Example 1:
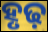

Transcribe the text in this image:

ହୃଢ଼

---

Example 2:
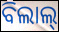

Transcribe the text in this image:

ବିଲାଲ୍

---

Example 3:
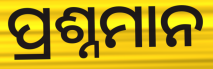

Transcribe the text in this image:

ପ୍ରଶ୍ନମାନ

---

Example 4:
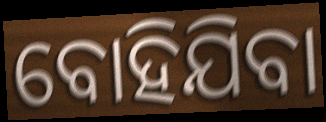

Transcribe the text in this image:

ବୋହିଯିବା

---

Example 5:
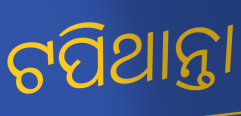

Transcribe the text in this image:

ଟପିଥାନ୍ତା